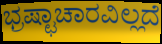
ಭ್ರಷ್ಟಾಚಾರವಿಲ್ಲದೆ